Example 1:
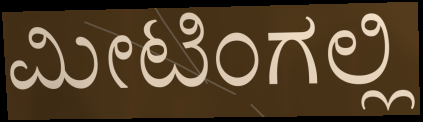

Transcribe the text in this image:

ಮೀಟಿಂಗಲ್ಲಿ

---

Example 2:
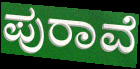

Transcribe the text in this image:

ಪುರಾವೆ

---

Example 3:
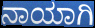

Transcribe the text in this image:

ನಾಯಾಗಿ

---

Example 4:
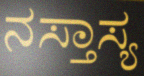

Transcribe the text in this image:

ನಸ್ತಾಸ್ಯ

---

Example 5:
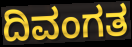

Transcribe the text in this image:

ದಿವಂಗತ